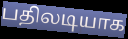
பதிலடியாக